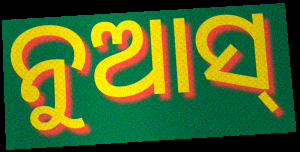
ନୁଆସ୍